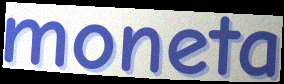
moneta